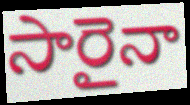
సారైనా